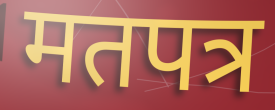
मतपत्र